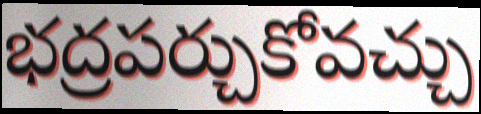
భద్రపర్చుకోవచ్చు